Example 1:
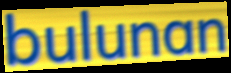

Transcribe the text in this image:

bulunan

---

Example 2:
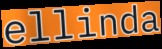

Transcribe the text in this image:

ellinda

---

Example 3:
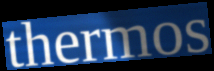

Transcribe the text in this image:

thermos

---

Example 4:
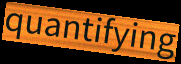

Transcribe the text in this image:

quantifying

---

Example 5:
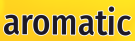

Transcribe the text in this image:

aromatic